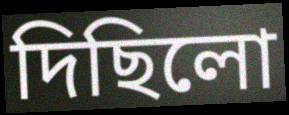
দিছিলো